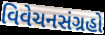
વિવેચનસંગ્રહો